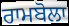
ਰਾਮਬੋਲਾ